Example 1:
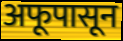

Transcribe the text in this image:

अफूपासून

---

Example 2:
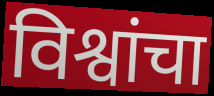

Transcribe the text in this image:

विश्वांचा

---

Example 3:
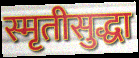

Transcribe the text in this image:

स्मृतीसुद्धा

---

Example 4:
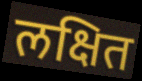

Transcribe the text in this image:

लक्षित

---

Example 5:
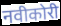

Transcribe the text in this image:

नवीकोरी